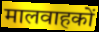
मालवाहकों